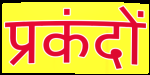
प्रकंदों